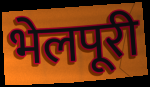
भेलपूरी